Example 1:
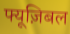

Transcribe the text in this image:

फ्यूज़िबल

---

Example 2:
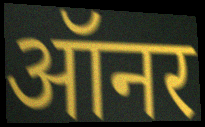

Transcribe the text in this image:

ऑनर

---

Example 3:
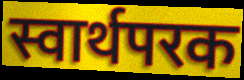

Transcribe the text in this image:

स्वार्थपरक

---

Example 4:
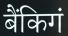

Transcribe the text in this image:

बैंकिगं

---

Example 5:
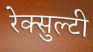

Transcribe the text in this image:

रेक्सुल्टी